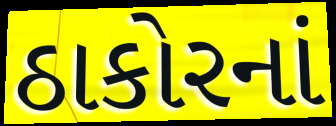
ઠાકોરનાં